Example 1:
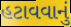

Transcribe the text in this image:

હટાવવાનું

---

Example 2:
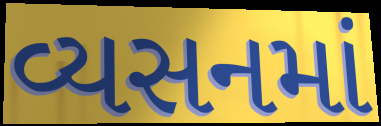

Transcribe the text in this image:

વ્યસનમાં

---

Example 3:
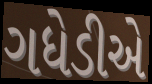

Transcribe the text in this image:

ગધેડીએ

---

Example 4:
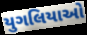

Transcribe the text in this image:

યુગલિયાઓ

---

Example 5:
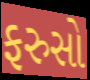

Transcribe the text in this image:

ફરુસો